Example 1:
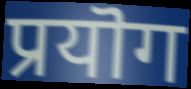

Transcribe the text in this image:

प्रयॊग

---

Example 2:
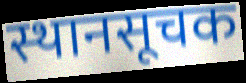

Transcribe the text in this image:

स्थानसूचक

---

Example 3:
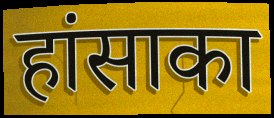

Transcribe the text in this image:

हांसाका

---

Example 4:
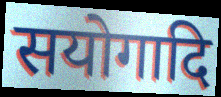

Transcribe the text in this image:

सयोगादि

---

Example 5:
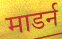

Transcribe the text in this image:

माडर्न